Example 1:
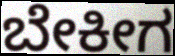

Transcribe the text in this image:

ಬೇಕೀಗ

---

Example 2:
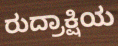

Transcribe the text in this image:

ರುದ್ರಾಕ್ಷಿಯ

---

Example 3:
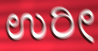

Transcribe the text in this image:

ಉರೀ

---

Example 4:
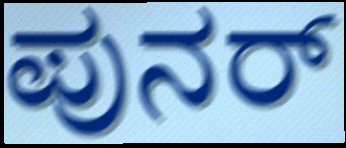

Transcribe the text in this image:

ಪುನರ್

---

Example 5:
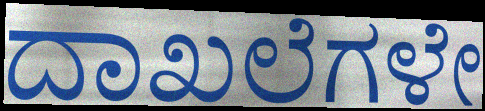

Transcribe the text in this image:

ದಾಖಲೆಗಳೇ